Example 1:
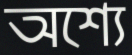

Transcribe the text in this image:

অশ্যে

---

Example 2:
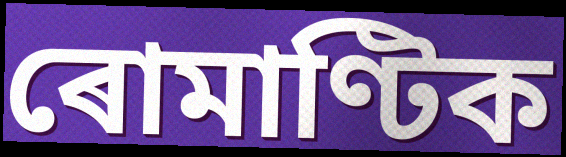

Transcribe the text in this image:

ৰোমাণ্টিক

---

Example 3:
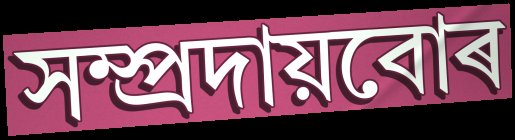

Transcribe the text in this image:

সম্প্ৰদায়বোৰ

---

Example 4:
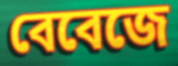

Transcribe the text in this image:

বেবেজে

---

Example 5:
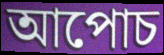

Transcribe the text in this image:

আপোচ